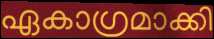
ഏകാഗ്രമാക്കി